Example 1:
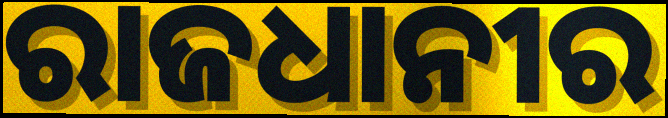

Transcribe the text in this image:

ରାଜଧାନୀର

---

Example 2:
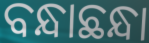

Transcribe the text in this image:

ବନ୍ଧାଛନ୍ଧା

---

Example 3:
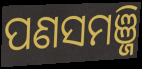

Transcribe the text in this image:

ପଣସମଞ୍ଜି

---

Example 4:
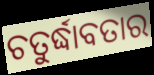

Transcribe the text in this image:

ଚତୁର୍ଦ୍ଧାବତାର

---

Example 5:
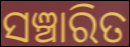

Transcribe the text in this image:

ସଞ୍ଚାରିତ